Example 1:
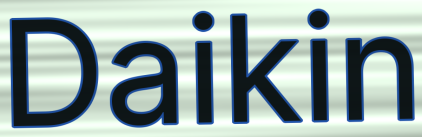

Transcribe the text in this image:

Daikin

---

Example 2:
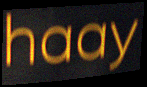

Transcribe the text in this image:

haay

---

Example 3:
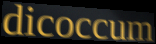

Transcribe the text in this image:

dicoccum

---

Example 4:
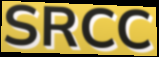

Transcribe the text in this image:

SRCC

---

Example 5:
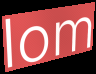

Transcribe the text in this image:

lom